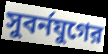
সুবর্নযুগের